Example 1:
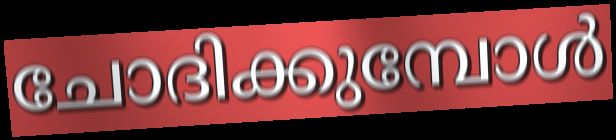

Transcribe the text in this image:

ചോദിക്കുമ്പോൾ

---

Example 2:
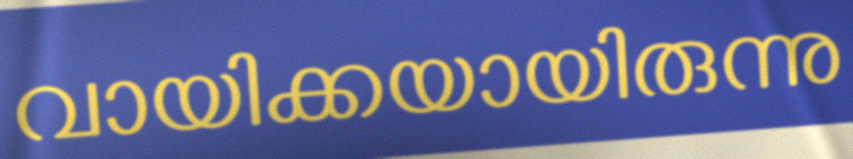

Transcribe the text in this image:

വായിക്കയായിരുന്നു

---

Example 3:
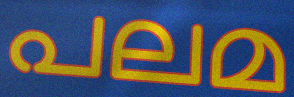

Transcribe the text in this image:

പലമ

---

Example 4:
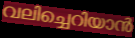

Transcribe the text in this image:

വലിച്ചെറിയാൻ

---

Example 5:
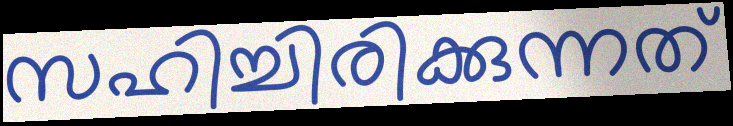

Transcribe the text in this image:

സഹിച്ചിരിക്കുന്നത്